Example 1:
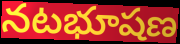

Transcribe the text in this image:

నటభూషణ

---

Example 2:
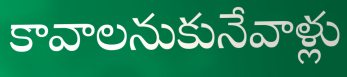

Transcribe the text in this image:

కావాలనుకునేవాళ్లు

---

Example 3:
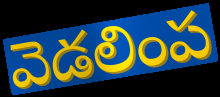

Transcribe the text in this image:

వెడలింప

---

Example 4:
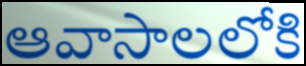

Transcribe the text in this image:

ఆవాసాలలోకి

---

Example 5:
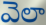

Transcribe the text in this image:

వెలా